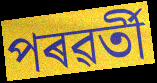
পৰৱৰ্তী